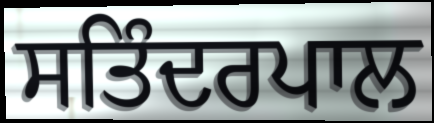
ਸਤਿੰਦਰਪਾਲ